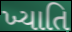
ખ્યાતિ